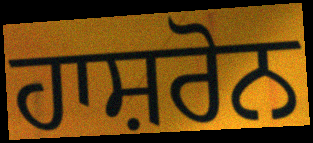
ਹਾਸ਼ਰੋਨ